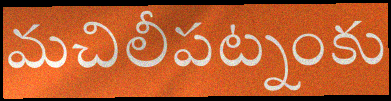
మచిలీపట్నంకు